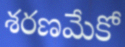
శరణమేకో